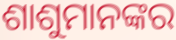
ଶାଶୁମାନଙ୍କର